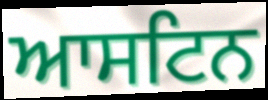
ਆਸਟਿਨ